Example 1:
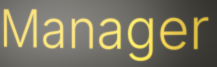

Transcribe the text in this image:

Manager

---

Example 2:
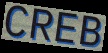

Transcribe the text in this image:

CREB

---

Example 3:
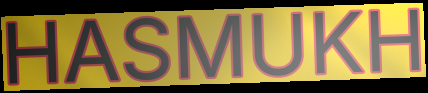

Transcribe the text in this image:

HASMUKH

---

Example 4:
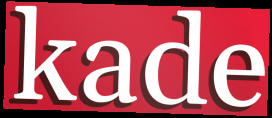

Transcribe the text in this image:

kade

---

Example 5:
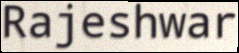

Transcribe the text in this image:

Rajeshwar